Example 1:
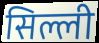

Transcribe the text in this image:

सिल्ली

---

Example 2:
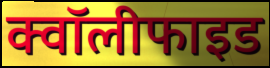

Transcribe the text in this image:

क्वॉलीफाइड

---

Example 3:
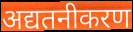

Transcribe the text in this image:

अद्यतनीकरण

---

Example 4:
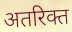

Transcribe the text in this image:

अतरिक्त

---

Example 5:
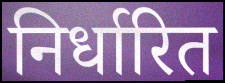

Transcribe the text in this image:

निर्धारित